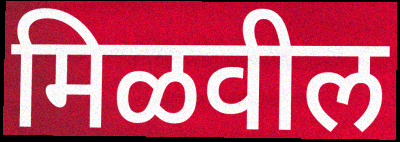
मिळवील